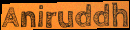
Aniruddh